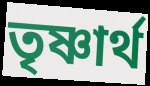
তৃষ্ণার্থ